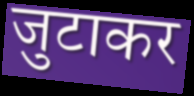
जुटाकर